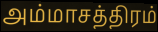
அம்மாசத்திரம்